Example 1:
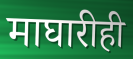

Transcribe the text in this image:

माघारीही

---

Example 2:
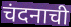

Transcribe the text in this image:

चंदनाची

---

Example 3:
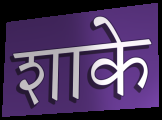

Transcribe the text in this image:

शाके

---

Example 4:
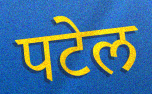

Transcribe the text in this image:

पटेल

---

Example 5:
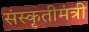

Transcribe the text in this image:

संस्कृतीमंत्री